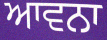
ਆਵਨਾ